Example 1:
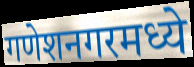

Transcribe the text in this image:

गणेशनगरमध्ये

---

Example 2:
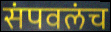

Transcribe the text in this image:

संपवलंच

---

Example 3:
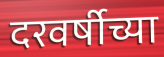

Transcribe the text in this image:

दरवर्षीच्या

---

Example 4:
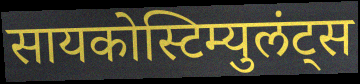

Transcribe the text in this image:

सायकोस्टिम्युलंट्स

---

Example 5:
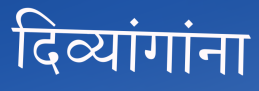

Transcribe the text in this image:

दिव्यांगांना